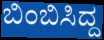
ಬಿಂಬಿಸಿದ್ದ